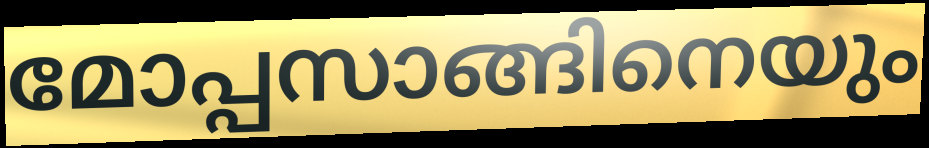
മോപ്പസാങ്ങിനെയും